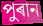
পুৰান